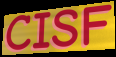
CISF